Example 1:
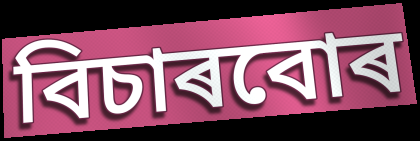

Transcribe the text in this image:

বিচাৰবোৰ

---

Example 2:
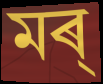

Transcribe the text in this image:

মৰ্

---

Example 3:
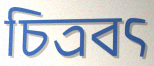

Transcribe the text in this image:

চিত্ৰবৎ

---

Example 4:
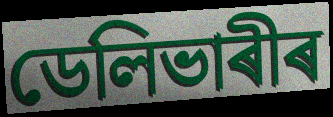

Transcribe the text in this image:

ডেলিভাৰীৰ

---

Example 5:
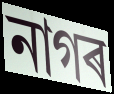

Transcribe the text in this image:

নাগৰ